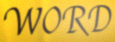
WORD